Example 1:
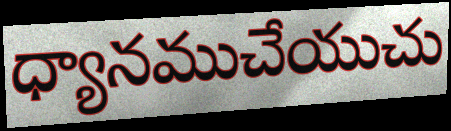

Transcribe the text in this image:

ధ్యానముచేయుచు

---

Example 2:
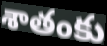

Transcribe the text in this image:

శాతంకు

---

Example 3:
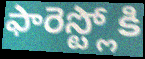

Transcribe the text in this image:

ఫారెస్ట్లోకి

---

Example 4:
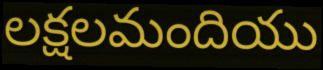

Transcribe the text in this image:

లక్షలమందియు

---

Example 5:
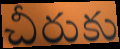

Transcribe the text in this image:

చీరుకు